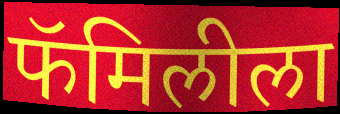
फॅमिलीला